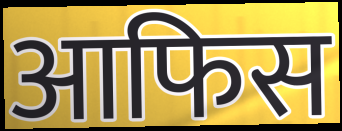
आफिस